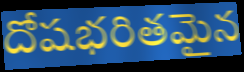
దోషభరితమైన